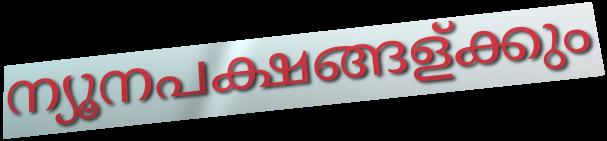
ന്യൂനപക്ഷങ്ങള്ക്കും